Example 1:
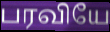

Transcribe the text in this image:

பரவியே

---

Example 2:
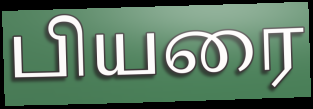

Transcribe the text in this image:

பியரை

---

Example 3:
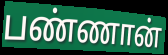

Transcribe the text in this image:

பண்ணான்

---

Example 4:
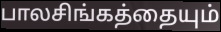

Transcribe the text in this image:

பாலசிங்கத்தையும்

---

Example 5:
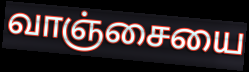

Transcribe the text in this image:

வாஞ்சையை